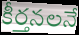
కీర్తనలనే